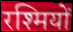
रश्मियों